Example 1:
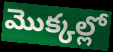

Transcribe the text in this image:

మొక్కల్లో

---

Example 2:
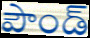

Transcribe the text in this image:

పౌండ్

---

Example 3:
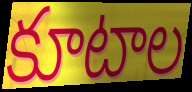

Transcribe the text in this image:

కూటాల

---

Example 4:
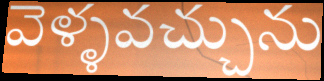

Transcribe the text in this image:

వెళ్ళవచ్చును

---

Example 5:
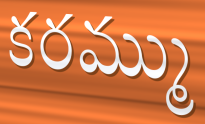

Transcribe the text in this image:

కరమ్ము